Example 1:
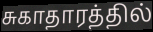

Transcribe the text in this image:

சுகாதாரத்தில்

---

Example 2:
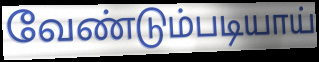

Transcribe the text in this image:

வேண்டும்படியாய்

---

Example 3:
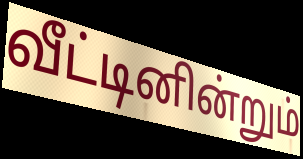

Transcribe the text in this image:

வீட்டினின்றும்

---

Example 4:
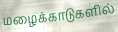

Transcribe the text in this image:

மழைக்காடுகளில்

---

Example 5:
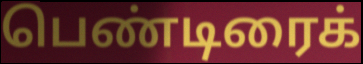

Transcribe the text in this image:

பெண்டிரைக்